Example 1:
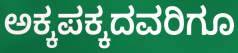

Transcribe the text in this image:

ಅಕ್ಕಪಕ್ಕದವರಿಗೂ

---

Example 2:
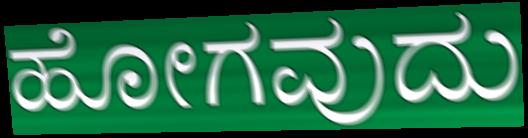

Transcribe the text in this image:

ಹೋಗವುದು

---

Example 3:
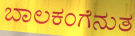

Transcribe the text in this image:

ಬಾಲಕಂಗೆನುತ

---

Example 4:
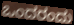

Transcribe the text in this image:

ಒಂದರಂದು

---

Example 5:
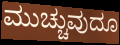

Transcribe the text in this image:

ಮುಚ್ಚುವುದೂ